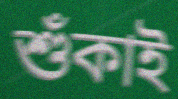
শুঁকাই